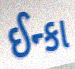
ઈન્કા